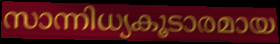
സാന്നിധ്യകൂടാരമായ